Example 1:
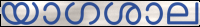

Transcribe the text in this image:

യാഗശാല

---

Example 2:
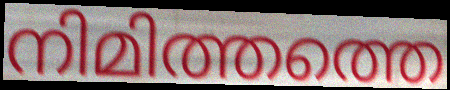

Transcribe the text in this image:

നിമിത്തത്തെ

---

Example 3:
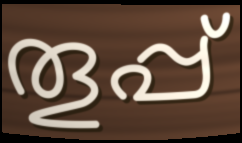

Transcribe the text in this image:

തൂപ്പ്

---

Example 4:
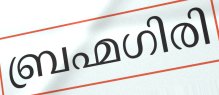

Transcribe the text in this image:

ബ്രഹ്മഗിരി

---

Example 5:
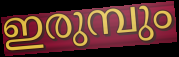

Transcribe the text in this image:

ഇരുമ്പും